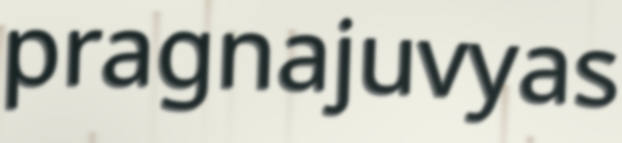
pragnajuvyas